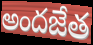
అందజేత